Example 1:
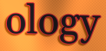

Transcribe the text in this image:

ology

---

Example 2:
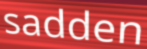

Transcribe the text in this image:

sadden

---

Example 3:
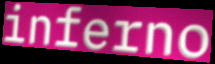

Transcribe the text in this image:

inferno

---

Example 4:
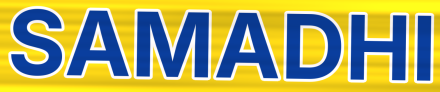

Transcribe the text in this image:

SAMADHI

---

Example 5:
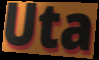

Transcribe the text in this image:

Uta